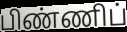
பிண்ணிப்